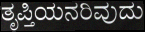
ತೃಪ್ತಿಯನರಿವುದು